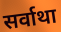
सर्वाथा